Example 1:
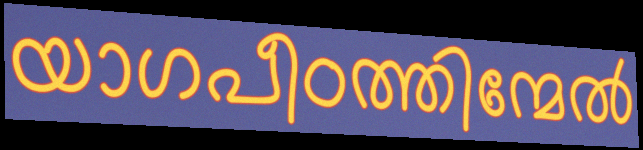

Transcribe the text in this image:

യാഗപീഠത്തിന്മേൽ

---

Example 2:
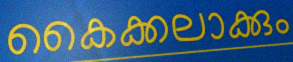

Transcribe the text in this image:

കൈക്കലാക്കും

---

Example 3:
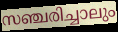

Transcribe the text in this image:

സഞ്ചരിച്ചാലും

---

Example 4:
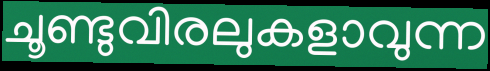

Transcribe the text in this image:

ചൂണ്ടുവിരലുകളാവുന്ന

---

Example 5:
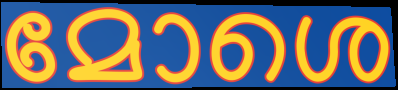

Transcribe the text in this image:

മോശെ